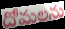
దోమలను